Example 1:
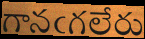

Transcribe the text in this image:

గానఁగలేరు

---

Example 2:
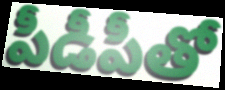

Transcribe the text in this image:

పీడీపీతో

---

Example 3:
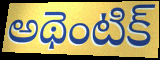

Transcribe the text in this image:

అథెంటిక్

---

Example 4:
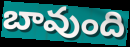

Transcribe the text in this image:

బావుంది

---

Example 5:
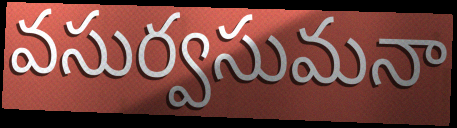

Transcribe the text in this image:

వసుర్వసుమనా